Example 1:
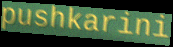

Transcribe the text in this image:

pushkarini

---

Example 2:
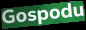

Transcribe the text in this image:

Gospodu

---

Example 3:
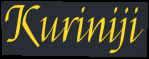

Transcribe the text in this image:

Kuriniji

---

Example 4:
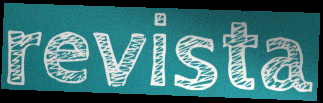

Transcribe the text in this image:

revista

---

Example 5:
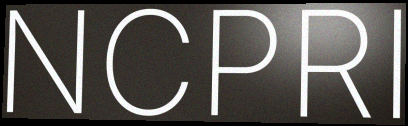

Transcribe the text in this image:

NCPRI